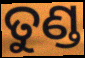
ତୁଣ୍ଡ